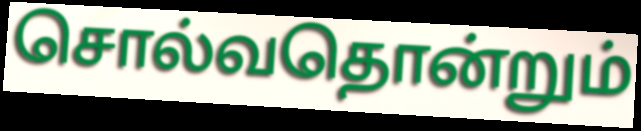
சொல்வதொன்றும்